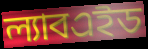
ল্যাবএইড